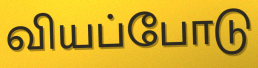
வியப்போடு